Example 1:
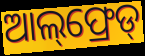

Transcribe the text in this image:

ଆଲ୍‌ଫ୍ରେଡ୍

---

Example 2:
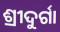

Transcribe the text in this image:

ଶ୍ରୀଦୁର୍ଗା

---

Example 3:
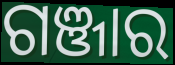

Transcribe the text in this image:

ଗଞ୍ଜାର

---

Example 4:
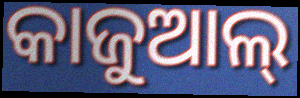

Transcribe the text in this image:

କାଜୁଆଲ୍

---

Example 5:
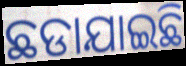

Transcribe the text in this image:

ଛଡାଯାଇଛି